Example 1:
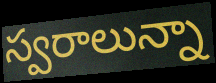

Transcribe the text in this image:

స్వరాలున్నా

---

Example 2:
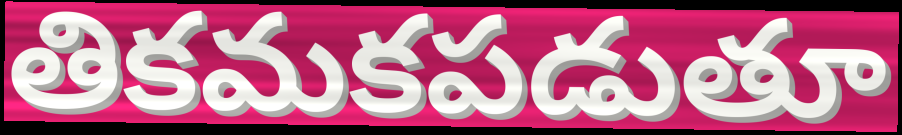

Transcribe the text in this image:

తికమకపడుతూ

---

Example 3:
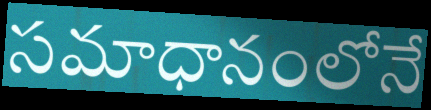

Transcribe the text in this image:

సమాధానంలోనే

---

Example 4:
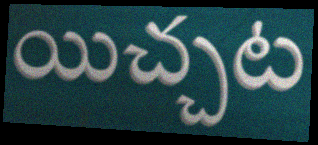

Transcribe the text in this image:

యిచ్చట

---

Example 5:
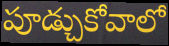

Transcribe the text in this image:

పూడ్చుకోవాలో